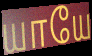
யாயே